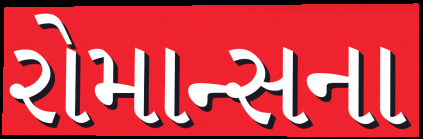
રોમાન્સના